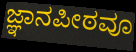
ಜ್ಞಾನಪೀಠವೂ